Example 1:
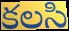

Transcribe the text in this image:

కలసి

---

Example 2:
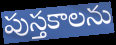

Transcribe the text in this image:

పుస్తకాలను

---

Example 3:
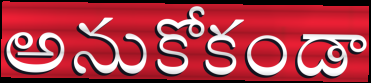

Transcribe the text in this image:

అనుకోకండా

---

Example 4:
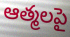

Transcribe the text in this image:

ఆత్మలపై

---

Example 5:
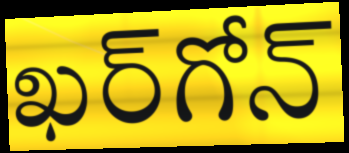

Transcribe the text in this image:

ఖర్‌గోన్